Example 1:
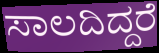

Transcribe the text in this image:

ಸಾಲದಿದ್ದರೆ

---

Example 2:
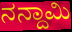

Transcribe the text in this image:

ನನ್ದಾಮಿ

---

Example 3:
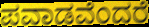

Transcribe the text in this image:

ಪವಾಡವೆಂದರೆ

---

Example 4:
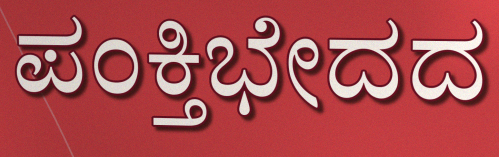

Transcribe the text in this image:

ಪಂಕ್ತಿಭೇದದ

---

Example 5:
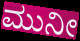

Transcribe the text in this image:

ಮುನೀ